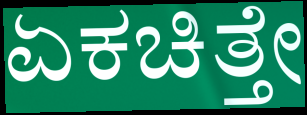
ಏಕಚಿತ್ತೇ